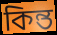
কিন্ত